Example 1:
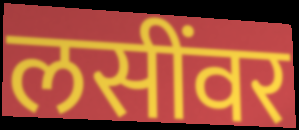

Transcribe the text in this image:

लसींवर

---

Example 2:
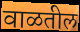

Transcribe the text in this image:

वाळतील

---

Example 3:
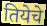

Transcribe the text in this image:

तियेचे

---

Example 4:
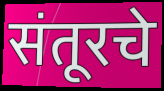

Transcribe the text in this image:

संतूरचे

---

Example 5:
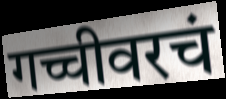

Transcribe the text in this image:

गच्चीवरचं